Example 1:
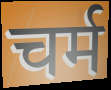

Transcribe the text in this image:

चर्म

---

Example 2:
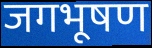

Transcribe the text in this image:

जगभूषण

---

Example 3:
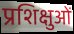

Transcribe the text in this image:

प्रशिक्षुओं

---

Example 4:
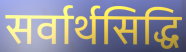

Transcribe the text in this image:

सर्वार्थसिद्धि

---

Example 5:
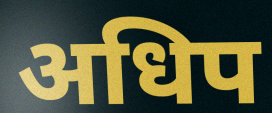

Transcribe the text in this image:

अधिप